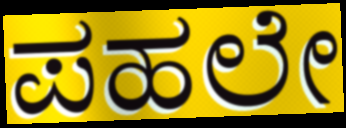
ಪಹಲೇ